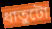
ধাতুটো